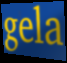
gela